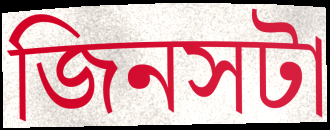
জিনসটা